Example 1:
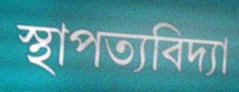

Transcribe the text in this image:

স্থাপত্যবিদ্যা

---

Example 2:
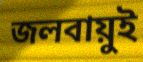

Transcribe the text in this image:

জলবায়ুই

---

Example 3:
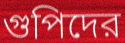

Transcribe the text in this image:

গুপিদের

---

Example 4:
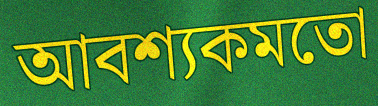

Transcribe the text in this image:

আবশ্যকমতো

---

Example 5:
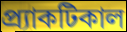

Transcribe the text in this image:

প্র্যাকটিকাল